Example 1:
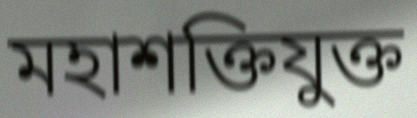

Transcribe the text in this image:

মহাশক্তিযুক্ত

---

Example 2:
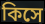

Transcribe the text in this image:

কিসে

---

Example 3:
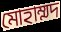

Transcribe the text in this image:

মোহাম্মদ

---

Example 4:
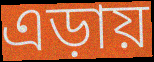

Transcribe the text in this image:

এড়ায়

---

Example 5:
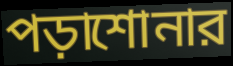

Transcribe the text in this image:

পড়াশোনার